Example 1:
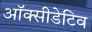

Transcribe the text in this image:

ऑक्सीडेटिव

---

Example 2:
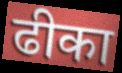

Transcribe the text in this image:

ढीका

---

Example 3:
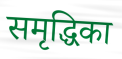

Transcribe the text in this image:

समृद्धिका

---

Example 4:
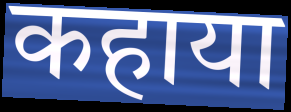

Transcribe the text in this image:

कहाया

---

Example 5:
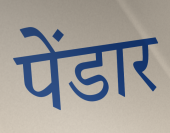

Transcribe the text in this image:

पेंडार